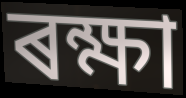
ৰক্ষা